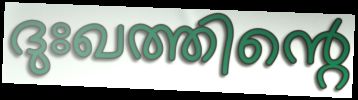
ദുഃഖത്തിന്റെ